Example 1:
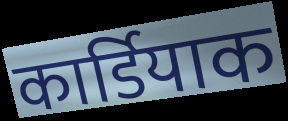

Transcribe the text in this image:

कार्डियाक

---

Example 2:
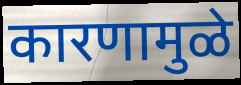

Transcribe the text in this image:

कारणामुळे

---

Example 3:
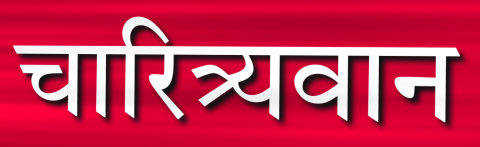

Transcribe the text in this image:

चारित्र्यवान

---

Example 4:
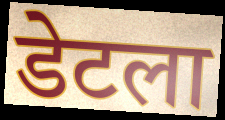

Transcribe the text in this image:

डेटला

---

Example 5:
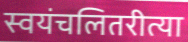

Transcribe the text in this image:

स्वयंचलितरीत्या